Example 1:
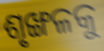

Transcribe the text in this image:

ଶୃଙ୍ଖଳକୁ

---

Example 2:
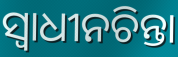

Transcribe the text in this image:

ସ୍ଵାଧୀନଚିନ୍ତା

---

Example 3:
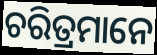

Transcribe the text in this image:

ଚରିତ୍ରମାନେ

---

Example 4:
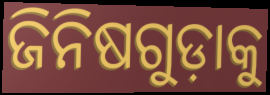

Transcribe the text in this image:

ଜିନିଷଗୁଡ଼ାକୁ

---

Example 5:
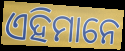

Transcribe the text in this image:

ଏହିମାନେ